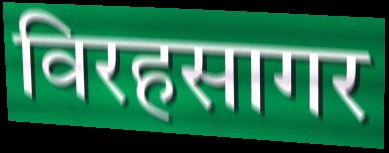
विरहसागर